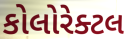
કોલોરેક્ટલ